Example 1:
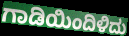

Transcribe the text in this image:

ಗಾಡಿಯಿಂದಿಳಿದು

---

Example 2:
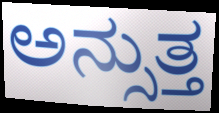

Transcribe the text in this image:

ಅನ್ಸುತ್ತ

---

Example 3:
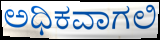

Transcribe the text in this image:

ಅಧಿಕವಾಗಲಿ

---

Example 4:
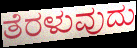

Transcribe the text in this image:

ತೆರಳುವುದು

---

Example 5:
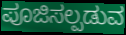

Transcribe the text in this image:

ಪೂಜಿಸಲ್ಪಡುವ